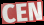
CEN